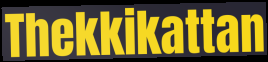
Thekkikattan